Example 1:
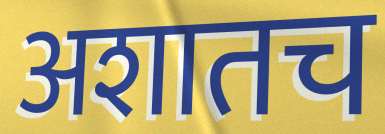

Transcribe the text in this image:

अशातच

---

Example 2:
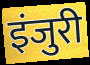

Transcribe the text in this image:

इंजुरी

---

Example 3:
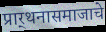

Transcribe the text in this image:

प्रार्थनासमाजाचे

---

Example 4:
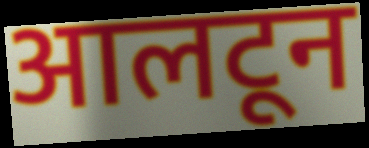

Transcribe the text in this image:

आलटून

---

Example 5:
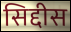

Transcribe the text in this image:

सिद्दीस